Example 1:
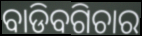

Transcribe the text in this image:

ବାଡିବଗିଚାର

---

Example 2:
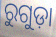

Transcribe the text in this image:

ରୁଗୁଡ଼ା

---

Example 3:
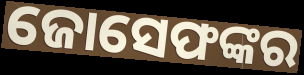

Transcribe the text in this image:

ଜୋସେଫଙ୍କର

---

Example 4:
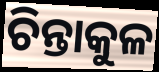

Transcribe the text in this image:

ଚିନ୍ତାକୁଳ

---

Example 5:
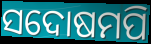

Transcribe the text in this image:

ସଦୋଷମପି